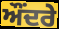
ਔਂਦਰੇ